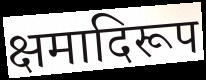
क्षमादिरूप